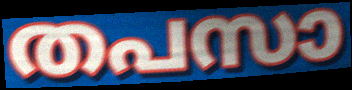
തപസാ